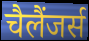
चैलैंजर्स